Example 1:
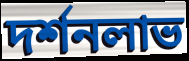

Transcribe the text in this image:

দর্শনলাভ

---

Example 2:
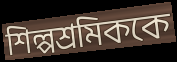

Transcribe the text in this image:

শিল্পশ্রমিককে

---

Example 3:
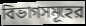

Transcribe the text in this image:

বিভাগসমূহের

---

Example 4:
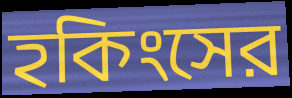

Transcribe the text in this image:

হকিংসের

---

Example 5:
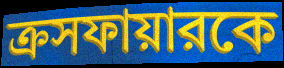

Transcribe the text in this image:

ক্রসফায়ারকে